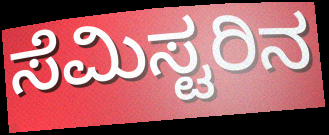
ಸೆಮಿಸ್ಟರಿನ